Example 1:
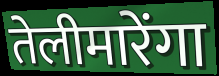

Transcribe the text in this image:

तेलीमारेंगा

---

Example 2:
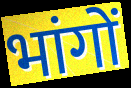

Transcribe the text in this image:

भांगों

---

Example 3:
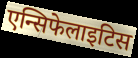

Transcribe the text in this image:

एन्सिफेलाइटिस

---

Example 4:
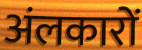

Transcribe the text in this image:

अंलकारों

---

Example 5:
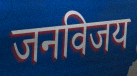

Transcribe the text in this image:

जनविजय